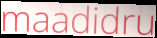
maadidru